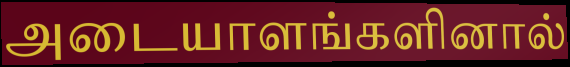
அடையாளங்களினால்